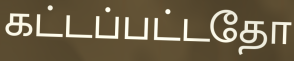
கட்டப்பட்டதோ